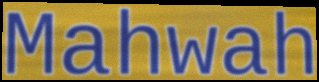
Mahwah